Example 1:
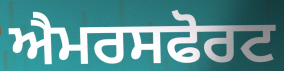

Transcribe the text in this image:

ਐਮਰਸਫੋਰਟ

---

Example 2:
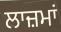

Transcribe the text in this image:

ਲਾਜ਼ਮਾਂ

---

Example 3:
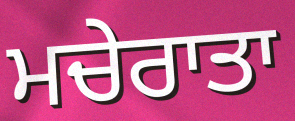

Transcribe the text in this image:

ਮਚੇਰਾਤਾ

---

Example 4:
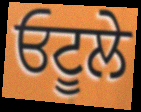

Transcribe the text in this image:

ਓਟੂਲੇ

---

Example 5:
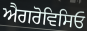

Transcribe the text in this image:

ਐਗਰੋਵਿਸਿਓ